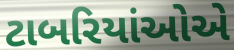
ટાબરિયાંઓએ